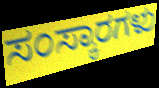
ಸಂಸ್ಕಾರಗಳು